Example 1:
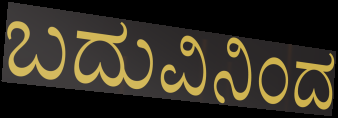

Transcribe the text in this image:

ಬದುವಿನಿಂದ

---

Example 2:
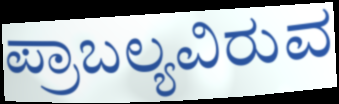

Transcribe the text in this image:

ಪ್ರಾಬಲ್ಯವಿರುವ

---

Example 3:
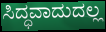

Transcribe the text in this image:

ಸಿದ್ಧವಾದುದಲ್ಲ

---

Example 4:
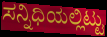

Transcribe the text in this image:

ಸನ್ನಿಧಿಯಲ್ಲಿಟ್ಟು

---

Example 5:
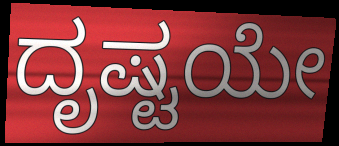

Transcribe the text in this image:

ದೃಷ್ಟಯೇ